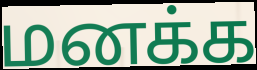
மனக்க